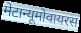
मेटान्यूमोवायरस